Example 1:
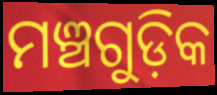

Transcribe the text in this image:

ମଞ୍ଚଗୁଡ଼ିକ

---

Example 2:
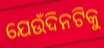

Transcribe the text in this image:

ଯେଉଁଦିନଟିକୁ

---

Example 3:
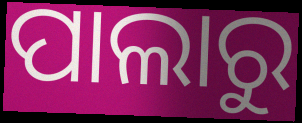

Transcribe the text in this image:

ପାଲାରୁ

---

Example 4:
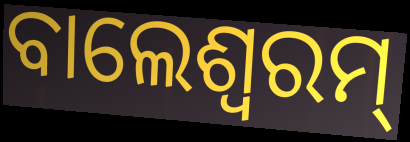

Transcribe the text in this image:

ବାଲେଶ୍ବରମ୍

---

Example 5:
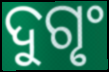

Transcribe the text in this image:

ଦୁଗୃଂ